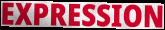
EXPRESSION